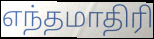
எந்தமாதிரி